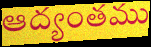
ఆద్యంతము